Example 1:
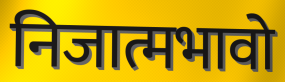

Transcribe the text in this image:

निजात्मभावो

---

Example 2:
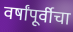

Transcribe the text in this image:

वर्षांपूर्वीचा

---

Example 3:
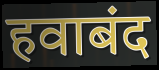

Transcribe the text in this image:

हवाबंद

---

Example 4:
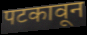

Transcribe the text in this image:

पटकावून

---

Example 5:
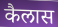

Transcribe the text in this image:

कैलास